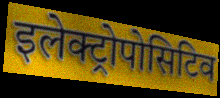
इलेक्ट्रोपोसिटिव